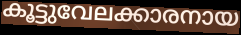
കൂട്ടുവേലക്കാരനായ